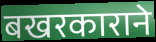
बखरकाराने